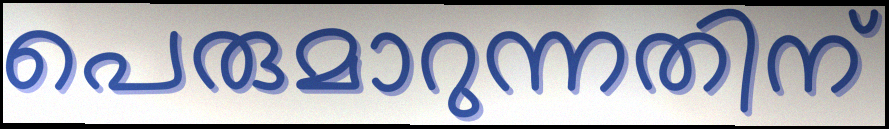
പെരുമാറുന്നതിന്